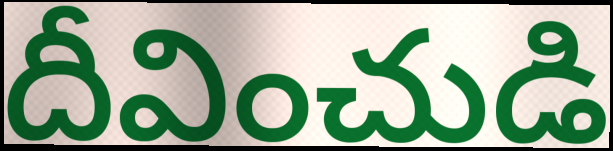
దీవించుడి